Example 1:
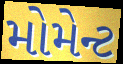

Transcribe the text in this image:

મોમેન્ટ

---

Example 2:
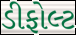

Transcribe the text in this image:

ડીફોલ્ટ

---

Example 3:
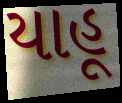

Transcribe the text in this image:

યાહૂ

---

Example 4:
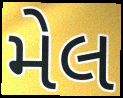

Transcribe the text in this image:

મેલ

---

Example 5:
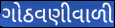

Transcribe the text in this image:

ગોઠવણીવાળી